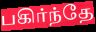
பகிர்ந்தே